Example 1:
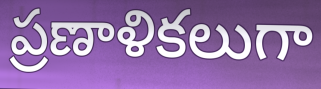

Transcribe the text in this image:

ప్రణాళికలుగా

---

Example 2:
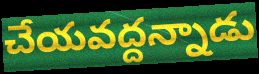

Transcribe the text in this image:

చేయవద్దన్నాడు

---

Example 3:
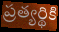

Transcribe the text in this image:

ప్రత్యర్థికి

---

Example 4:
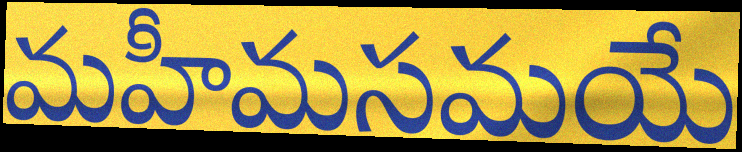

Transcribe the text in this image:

మహీమసమయే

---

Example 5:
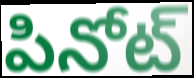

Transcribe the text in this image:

పినోట్